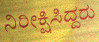
ನಿರೀಕ್ಷಿಸಿದ್ದರು